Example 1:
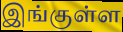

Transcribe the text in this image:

இங்குள்ள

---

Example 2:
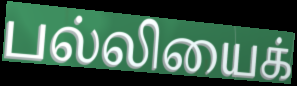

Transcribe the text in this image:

பல்லியைக்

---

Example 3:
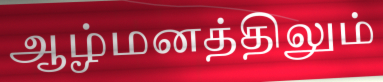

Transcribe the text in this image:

ஆழ்மனத்திலும்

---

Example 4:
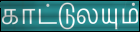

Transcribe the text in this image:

காட்டுலயும்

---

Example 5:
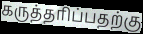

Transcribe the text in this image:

கருத்தரிப்பதற்கு